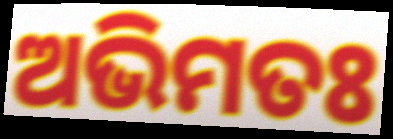
ଅଭିମତଃ